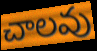
చాలవు